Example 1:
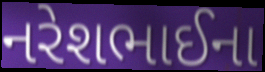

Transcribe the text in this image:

નરેશભાઈના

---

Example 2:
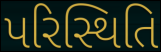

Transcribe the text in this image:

પરિસ્થિતિ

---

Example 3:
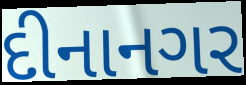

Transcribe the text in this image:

દીનાનગર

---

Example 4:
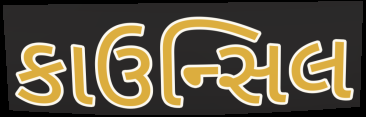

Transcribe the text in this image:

કાઉન્સિલ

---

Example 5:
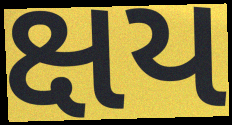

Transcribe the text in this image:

ક્ષય